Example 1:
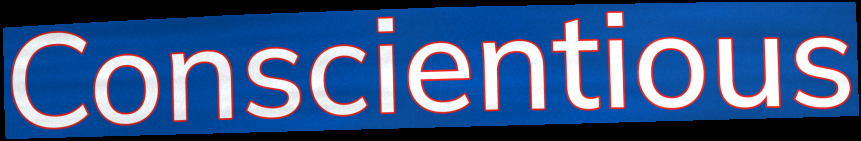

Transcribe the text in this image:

Conscientious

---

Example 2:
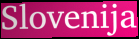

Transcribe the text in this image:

Slovenija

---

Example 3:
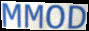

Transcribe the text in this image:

MMOD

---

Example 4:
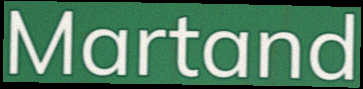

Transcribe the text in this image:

Martand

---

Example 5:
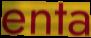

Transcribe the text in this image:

enta